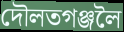
দৌলতগঞ্জলৈ